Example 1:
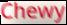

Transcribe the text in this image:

Chewy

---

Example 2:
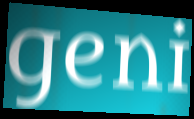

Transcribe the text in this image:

geni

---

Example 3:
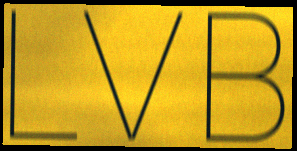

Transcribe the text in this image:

LVB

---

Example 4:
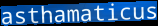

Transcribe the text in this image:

asthamaticus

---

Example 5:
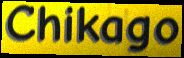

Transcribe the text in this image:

Chikago